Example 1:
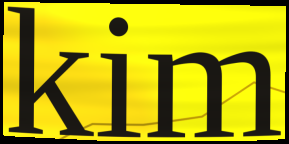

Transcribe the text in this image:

kim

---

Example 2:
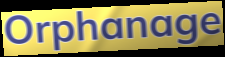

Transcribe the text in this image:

Orphanage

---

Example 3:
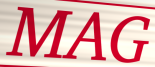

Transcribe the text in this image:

MAG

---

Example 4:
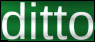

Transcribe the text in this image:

ditto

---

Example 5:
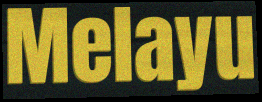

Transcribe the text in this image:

Melayu